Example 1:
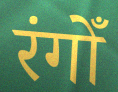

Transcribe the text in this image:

रंगोँ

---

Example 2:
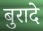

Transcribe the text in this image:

बुरादे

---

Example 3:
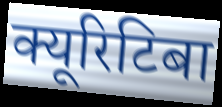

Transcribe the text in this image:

क्यूरिटिबा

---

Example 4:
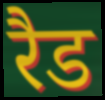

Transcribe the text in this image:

रैड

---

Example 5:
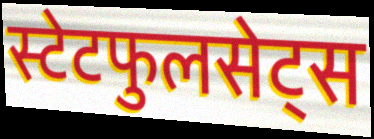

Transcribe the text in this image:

स्टेटफुलसेट्स